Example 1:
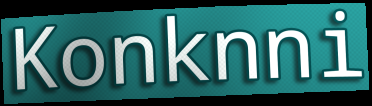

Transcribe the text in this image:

Konknni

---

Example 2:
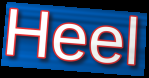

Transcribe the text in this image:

Heel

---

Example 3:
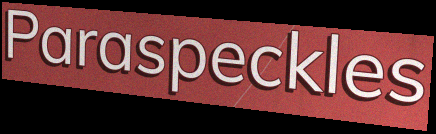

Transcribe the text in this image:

Paraspeckles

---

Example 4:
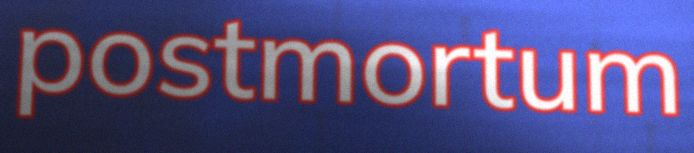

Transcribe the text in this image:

postmortum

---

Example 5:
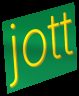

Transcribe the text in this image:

jott